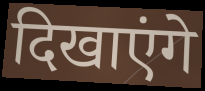
दिखाएंगे